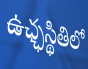
ఉఛ్ఛస్థితిలో